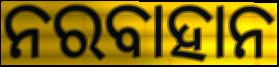
ନରବାହାନ